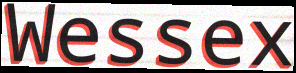
Wessex